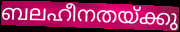
ബലഹീനതയ്ക്കു